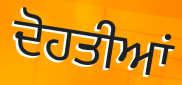
ਦੋਹਤੀਆਂ